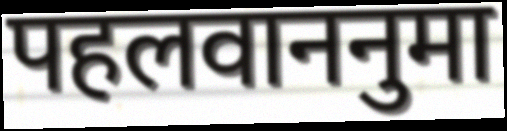
पहलवाननुमा